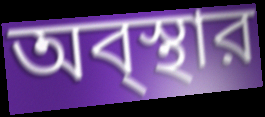
অব্স্থার